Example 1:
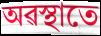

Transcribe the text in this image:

অৱস্থাতে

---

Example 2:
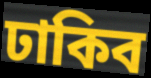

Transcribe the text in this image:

ঢাকিব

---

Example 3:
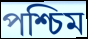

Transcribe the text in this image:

পশ্চিম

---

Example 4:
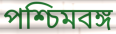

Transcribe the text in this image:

পশ্চিমবঙ্গ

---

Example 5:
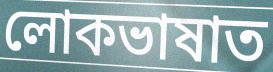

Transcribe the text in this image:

লোকভাষাত